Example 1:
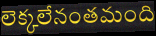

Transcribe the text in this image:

లెక్కలేనంతమంది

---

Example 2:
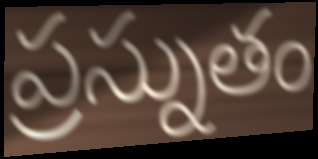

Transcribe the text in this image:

ప్రస్నుతం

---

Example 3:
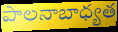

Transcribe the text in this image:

పాలనాబాధ్యత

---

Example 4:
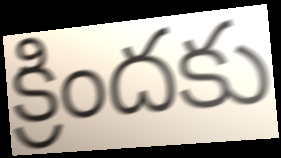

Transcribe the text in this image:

క్రిందకు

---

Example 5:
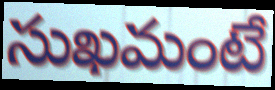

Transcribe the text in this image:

సుఖమంటే